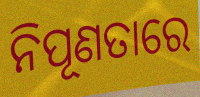
ନିପୂଣତାରେ